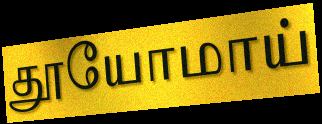
தூயோமாய்